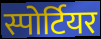
स्पोर्टियर